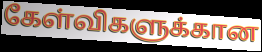
கேள்விகளுக்கான